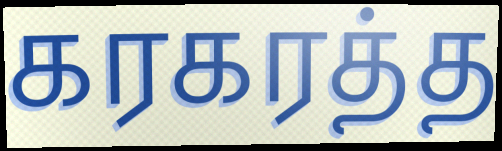
கரகரத்த